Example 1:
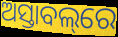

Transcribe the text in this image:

ଅସ୍ତାବଲ୍‌ରେ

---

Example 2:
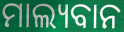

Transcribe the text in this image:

ମାଲ୍ୟବାନ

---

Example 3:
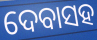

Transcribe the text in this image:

ଦେବାସହ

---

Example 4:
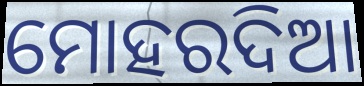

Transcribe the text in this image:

ମୋହରଦିଆ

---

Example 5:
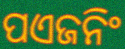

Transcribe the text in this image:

ପଏଜନିଂ